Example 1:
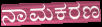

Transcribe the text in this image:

ನಾಮಕರಣ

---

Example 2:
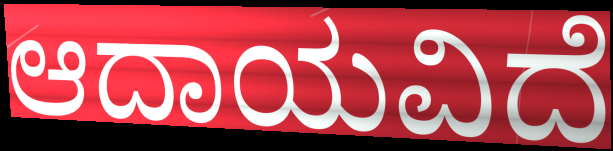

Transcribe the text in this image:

ಆದಾಯವಿದೆ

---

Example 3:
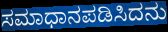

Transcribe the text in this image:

ಸಮಾಧಾನಪಡಿಸಿದನು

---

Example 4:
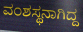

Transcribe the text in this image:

ವಂಶಸ್ಥನಾಗಿದ್ದ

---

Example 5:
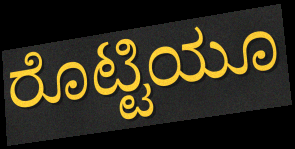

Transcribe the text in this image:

ರೊಟ್ಟಿಯೂ